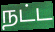
நட்ட